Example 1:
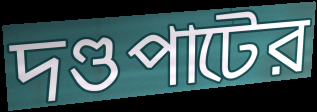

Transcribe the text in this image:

দণ্ডপাটের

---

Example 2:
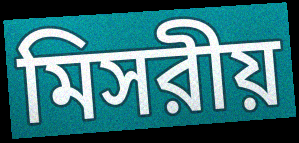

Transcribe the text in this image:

মিসরীয়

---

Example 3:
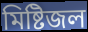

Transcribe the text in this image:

মিষ্টিজল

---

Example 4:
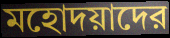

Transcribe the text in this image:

মহোদয়াদের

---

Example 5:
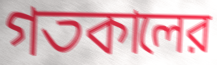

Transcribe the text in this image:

গতকালের